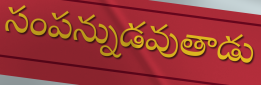
సంపన్నుడవుతాడు